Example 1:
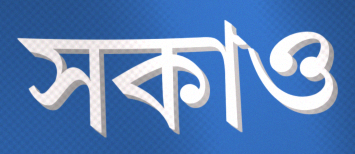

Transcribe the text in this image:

সকাও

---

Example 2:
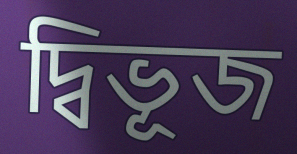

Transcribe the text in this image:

দ্বিভূজ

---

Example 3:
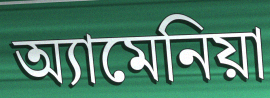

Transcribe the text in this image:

অ্যামেনিয়া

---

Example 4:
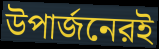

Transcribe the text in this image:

উপার্জনেরই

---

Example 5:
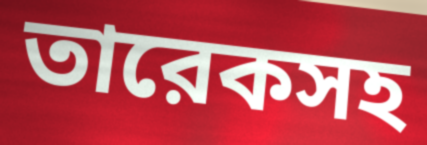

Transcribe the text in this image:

তারেকসহ